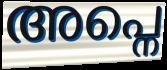
അപ്നെ